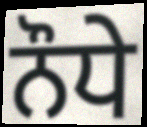
ਨੌਧੇ